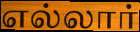
எல்லார்